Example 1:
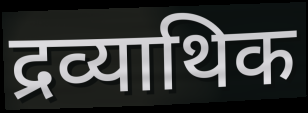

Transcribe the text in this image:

द्रव्याथिक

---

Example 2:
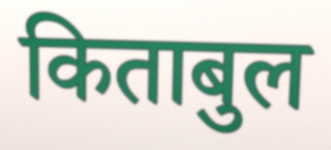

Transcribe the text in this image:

किताबुल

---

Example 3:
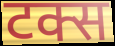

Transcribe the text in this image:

टक्स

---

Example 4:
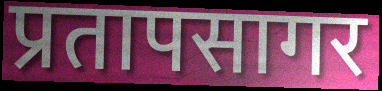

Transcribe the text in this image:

प्रतापसागर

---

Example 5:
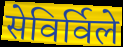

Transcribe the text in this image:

सेविर्विले